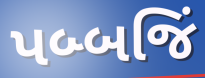
પબ્બજિં